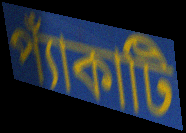
প্যাঁকাটি